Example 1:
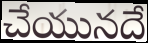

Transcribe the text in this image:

చేయునదే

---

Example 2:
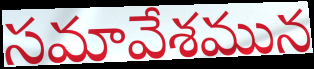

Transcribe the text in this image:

సమావేశమున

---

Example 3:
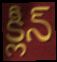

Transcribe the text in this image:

క్లీన్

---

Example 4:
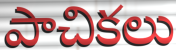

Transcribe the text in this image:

పాచికలు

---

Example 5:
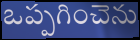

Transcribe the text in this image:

ఒప్పగించెను